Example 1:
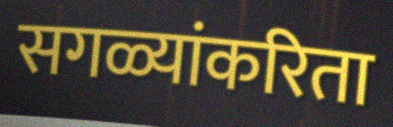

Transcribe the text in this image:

सगळ्यांकरिता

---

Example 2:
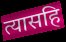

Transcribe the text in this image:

त्यासहि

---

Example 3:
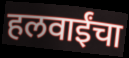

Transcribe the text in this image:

हलवाईंचा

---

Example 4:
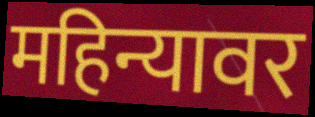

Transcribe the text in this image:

महिन्यावर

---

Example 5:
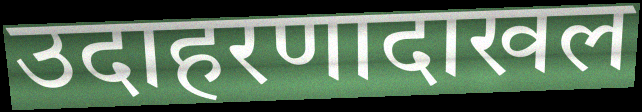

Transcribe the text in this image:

उदाहरणादाखल